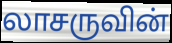
லாசருவின்